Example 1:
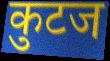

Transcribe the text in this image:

कुटज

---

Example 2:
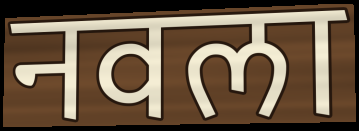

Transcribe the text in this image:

नवला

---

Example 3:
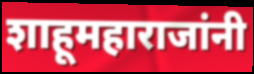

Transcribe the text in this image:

शाहूमहाराजांनी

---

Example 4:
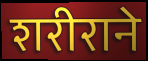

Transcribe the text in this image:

शरीराने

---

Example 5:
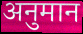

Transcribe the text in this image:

अनुमान